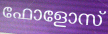
ഫോളോസ്